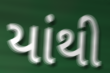
યાંથી